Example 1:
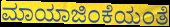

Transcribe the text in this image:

ಮಾಯಾಜಿಂಕೆಯಂತೆ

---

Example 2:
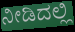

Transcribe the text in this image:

ನೀಡಿದಲ್ಲಿ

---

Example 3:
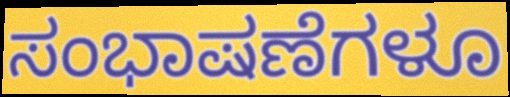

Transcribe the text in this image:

ಸಂಭಾಷಣೆಗಳೂ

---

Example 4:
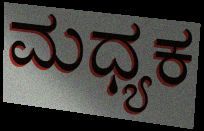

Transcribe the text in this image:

ಮಧ್ಯಕ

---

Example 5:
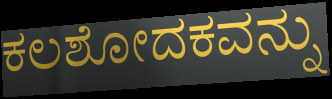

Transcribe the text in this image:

ಕಲಶೋದಕವನ್ನು